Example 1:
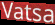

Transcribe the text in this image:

Vatsa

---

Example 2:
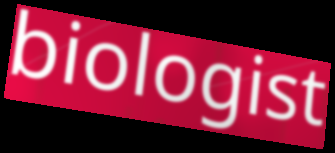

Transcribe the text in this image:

biologist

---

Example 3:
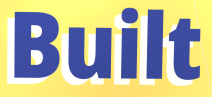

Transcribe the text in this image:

Built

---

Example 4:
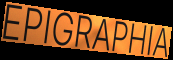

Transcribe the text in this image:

EPIGRAPHIA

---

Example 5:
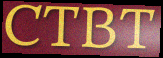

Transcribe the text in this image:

CTBT